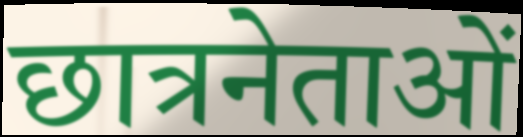
छात्रनेताओं